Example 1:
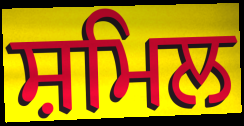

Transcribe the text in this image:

ਸ਼ਮਿਲ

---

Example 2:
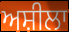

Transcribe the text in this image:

ਅਸ਼ੀਲਾ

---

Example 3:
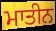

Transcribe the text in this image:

ਮਾਤੀਨ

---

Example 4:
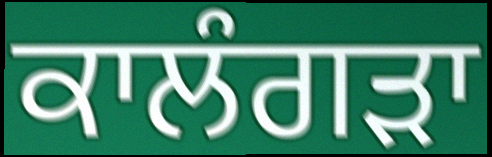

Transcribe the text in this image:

ਕਾਲੰਗੜਾ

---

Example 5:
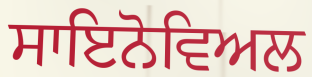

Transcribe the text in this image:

ਸਾਇਨੋਵਿਅਲ